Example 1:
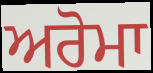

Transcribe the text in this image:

ਅਰੋਮਾ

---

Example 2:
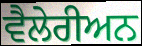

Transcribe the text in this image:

ਵੈਲੇਰੀਅਨ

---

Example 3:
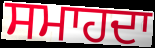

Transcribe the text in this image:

ਸਮਾਹਦਾ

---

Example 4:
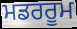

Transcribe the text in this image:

ਮਡਰਰੂਮ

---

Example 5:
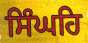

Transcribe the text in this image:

ਸਿੰਘਹਿ